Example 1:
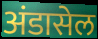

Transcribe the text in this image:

अंडासेल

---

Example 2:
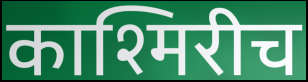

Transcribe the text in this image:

काश्मिरीच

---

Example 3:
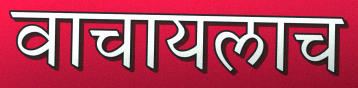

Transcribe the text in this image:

वाचायलाच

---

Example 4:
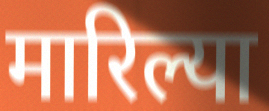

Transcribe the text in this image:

मारिल्या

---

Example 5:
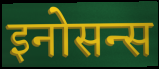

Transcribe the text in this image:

इनोसन्स